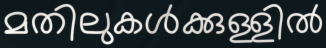
മതിലുകൾക്കുള്ളിൽ